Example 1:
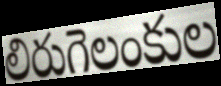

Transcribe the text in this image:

లిరుగెలంకుల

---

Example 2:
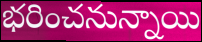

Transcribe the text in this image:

భరించనున్నాయి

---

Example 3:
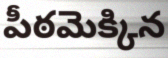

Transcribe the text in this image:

పీఠమెక్కిన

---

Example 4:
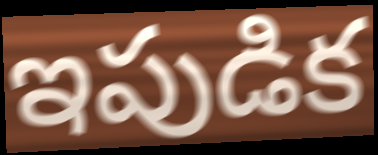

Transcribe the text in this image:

ఇపుడిక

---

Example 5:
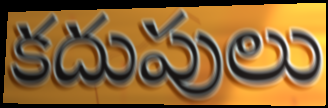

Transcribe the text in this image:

కదుపులు